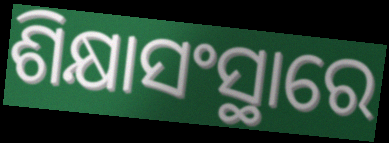
ଶିକ୍ଷାସଂସ୍ଥାରେ